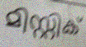
മിസ്റ്റിക്